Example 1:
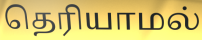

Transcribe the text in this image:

தெரியாமல்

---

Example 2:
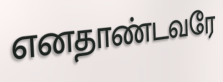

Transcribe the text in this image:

எனதாண்டவரே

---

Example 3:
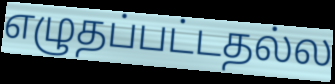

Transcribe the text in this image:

எழுதப்பட்டதல்ல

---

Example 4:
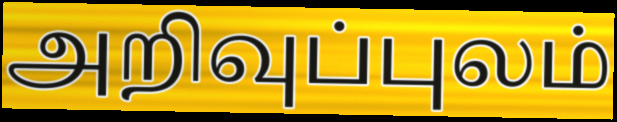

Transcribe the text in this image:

அறிவுப்புலம்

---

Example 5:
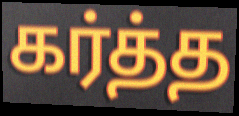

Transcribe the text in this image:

கர்த்த